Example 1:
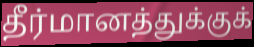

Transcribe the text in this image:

தீர்மானத்துக்குக்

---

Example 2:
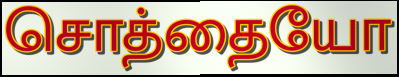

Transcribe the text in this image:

சொத்தையோ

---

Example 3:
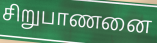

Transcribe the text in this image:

சிறுபாணனை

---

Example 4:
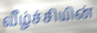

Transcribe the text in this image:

வீழ்ச்சியின்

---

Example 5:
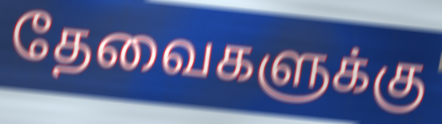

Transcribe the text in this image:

தேவைகளுக்கு